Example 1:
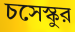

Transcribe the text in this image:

চসেস্কুর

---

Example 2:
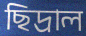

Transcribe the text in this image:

ছিদ্রাল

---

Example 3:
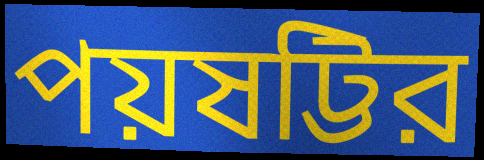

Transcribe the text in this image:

পয়ষট্টির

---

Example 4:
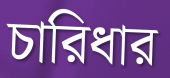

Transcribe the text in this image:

চারিধার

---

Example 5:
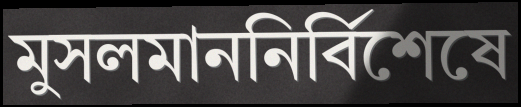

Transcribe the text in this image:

মুসলমাননির্বিশেষে